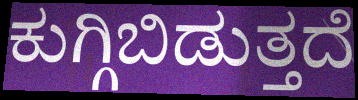
ಕುಗ್ಗಿಬಿಡುತ್ತದೆ